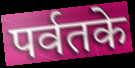
पर्वतके